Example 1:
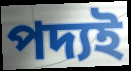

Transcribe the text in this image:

পদ্যই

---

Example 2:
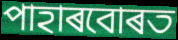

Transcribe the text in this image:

পাহাৰবোৰত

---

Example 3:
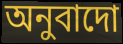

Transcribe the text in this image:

অনুবাদো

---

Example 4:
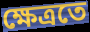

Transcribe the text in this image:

ক্ষেত্ৰতে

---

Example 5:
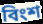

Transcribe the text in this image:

বিংশ